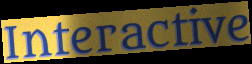
Interactive